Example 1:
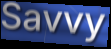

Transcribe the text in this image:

Savvy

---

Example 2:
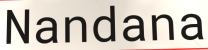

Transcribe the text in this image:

Nandana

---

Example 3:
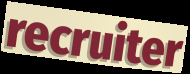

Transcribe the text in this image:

recruiter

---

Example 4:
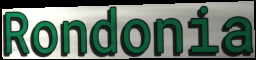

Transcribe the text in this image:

Rondonia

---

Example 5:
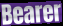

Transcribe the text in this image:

Bearer